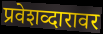
प्रवेशव्दारावर